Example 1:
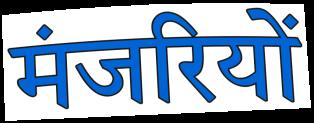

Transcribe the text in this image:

मंजरियों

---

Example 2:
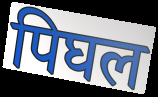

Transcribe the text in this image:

पिघल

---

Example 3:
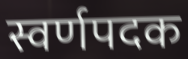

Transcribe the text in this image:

स्वर्णपदक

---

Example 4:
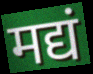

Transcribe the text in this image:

मद्यं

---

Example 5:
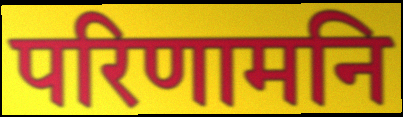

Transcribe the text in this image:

परिणामनि